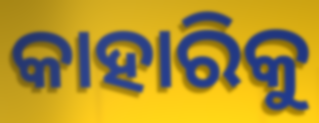
କାହାରିକୁ